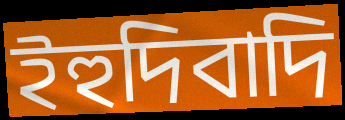
ইহুদিবাদি